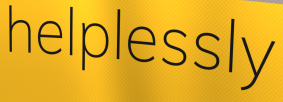
helplessly